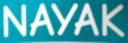
NAYAK